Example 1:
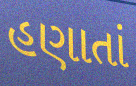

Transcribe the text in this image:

હણાતાં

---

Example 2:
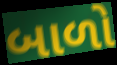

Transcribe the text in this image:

બાળો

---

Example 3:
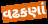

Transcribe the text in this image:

વઢકણાં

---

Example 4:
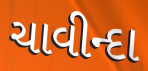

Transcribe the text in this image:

ચાવીન્દા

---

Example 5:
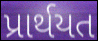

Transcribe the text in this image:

પ્રાર્થયત